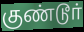
குண்டூர்